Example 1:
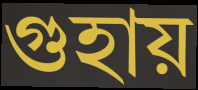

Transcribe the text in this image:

গুহায়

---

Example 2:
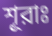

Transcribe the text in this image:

শূরাঃ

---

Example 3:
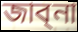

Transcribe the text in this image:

জাব্‌না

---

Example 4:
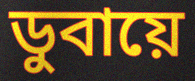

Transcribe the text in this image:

ডুবায়ে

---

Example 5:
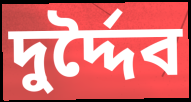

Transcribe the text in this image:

দুর্দ্দৈব